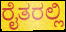
ರೈತರಲ್ಲಿ